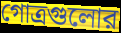
গোত্রগুলোর